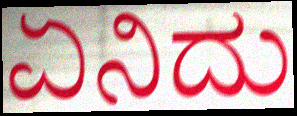
ಏನಿದು